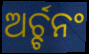
ଅର୍ଚ୍ଚନଂ